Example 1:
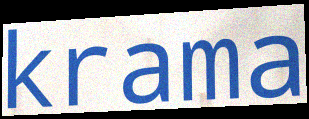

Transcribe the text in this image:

krama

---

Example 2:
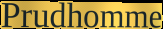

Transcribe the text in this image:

Prudhomme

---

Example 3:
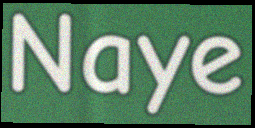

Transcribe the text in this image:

Naye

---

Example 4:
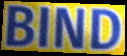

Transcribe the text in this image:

BIND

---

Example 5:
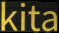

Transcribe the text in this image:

kita